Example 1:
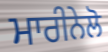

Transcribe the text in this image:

ਮਾਰੀਨੇਲੋ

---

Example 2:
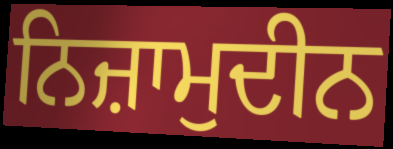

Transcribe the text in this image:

ਨਿਜ਼ਾਮੁਦੀਨ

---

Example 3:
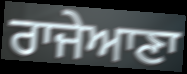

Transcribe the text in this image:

ਰਾਜੇਆਣਾ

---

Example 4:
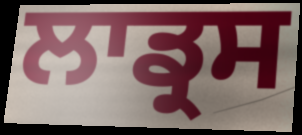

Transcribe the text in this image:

ਲਾਡ੍ਰਸ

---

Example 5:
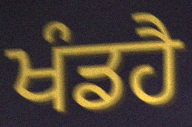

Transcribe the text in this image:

ਖੰਡਹੈ